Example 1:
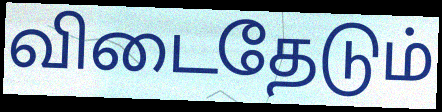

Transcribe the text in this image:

விடைதேடும்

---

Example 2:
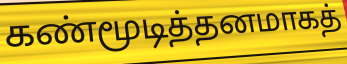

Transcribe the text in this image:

கண்மூடித்தனமாகத்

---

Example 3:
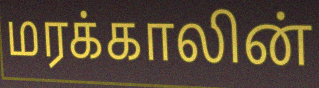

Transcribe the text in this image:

மரக்காலின்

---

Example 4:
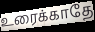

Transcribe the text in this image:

உரைக்காதே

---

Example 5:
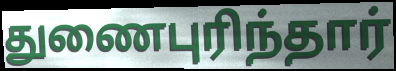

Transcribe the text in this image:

துணைபுரிந்தார்